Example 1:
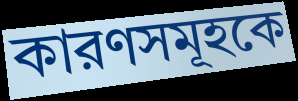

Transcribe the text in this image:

কারণসমূহকে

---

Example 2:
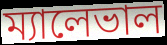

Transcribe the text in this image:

ম্যালেভাল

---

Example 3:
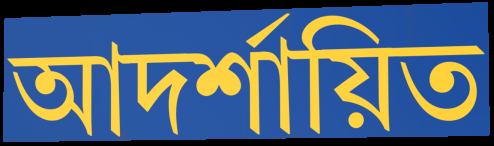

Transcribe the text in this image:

আদর্শায়িত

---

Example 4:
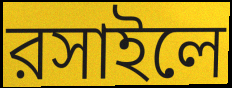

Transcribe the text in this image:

রসাইলে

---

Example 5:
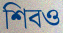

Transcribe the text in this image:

শিবও